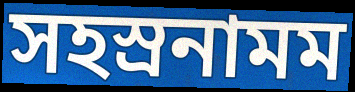
সহস্রনামম